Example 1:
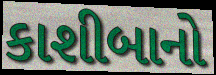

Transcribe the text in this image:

કાશીબાનો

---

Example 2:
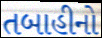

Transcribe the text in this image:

તબાહીનો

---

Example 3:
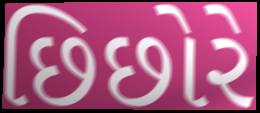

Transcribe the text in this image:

છિછોરે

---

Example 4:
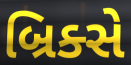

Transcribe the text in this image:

બ્રિક્સે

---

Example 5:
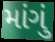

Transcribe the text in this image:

માંગું